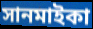
সানমাইকা